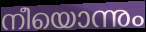
നീയൊന്നും